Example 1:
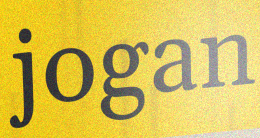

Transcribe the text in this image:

jogan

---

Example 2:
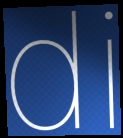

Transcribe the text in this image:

di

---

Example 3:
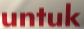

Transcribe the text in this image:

untuk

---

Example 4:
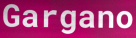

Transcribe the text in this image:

Gargano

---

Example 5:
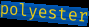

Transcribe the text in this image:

polyester